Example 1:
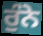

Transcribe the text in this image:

ਰੁੰਨੇ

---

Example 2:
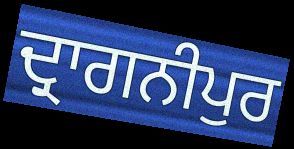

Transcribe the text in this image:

ਦ੍ਰਾਗਨੀਪੁਰ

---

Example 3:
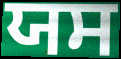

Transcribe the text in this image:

ਯਸ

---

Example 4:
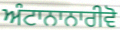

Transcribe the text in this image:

ਅੰਟਾਨਾਨਾਰੀਵੋ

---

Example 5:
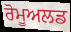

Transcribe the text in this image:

ਰੋਮੂਅਲਡ